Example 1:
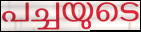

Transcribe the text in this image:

പച്ചയുടെ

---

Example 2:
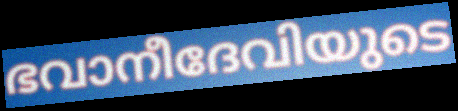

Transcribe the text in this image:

ഭവാനീദേവിയുടെ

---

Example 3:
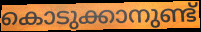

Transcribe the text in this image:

കൊടുക്കാനുണ്ട്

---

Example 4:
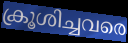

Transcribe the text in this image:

ക്രൂശിച്ചവരെ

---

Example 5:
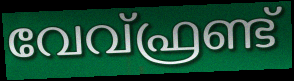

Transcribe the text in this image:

വേവ്ഫ്രണ്ട്